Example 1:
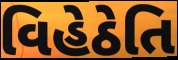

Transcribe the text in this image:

વિહેઠેતિ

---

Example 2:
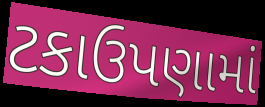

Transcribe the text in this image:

ટકાઉપણામાં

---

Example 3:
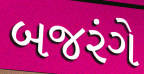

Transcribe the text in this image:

બજરંગે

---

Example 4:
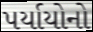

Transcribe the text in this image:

પર્યાયોનો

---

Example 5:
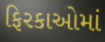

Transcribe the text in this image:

ફિરકાઓમાં